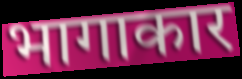
भागाकार